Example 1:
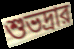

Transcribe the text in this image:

শুভদ্রার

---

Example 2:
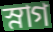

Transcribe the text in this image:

স্নাগ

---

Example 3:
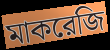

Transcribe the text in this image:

মাকরেজি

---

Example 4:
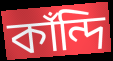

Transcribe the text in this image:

কাঁন্দি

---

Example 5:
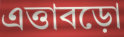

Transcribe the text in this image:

এত্তাবড়ো